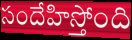
సందేహిస్తోంది